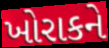
ખોરાકને